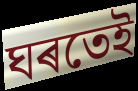
ঘৰতেই